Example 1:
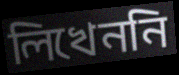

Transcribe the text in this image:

লিখেননি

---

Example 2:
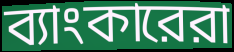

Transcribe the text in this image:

ব্যাংকারেরা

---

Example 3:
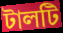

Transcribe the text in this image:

টালটি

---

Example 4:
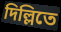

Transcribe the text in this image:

দিল্লিতে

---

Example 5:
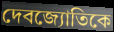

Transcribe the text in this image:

দেবজ্যোতিকে